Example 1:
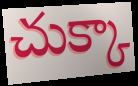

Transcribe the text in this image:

చుక్కా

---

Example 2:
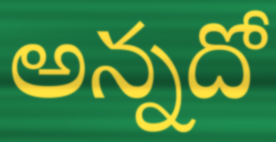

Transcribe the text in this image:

అన్నదో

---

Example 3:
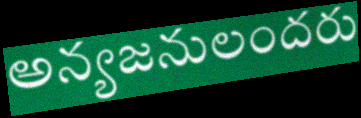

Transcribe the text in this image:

అన్యజనులందరు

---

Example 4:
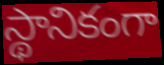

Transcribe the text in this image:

స్థానికంగా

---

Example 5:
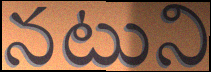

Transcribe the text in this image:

నటుని